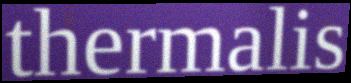
thermalis